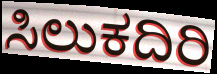
ಸಿಲುಕದಿರಿ